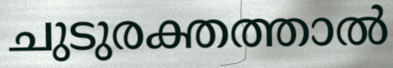
ചുടുരക്തത്താൽ